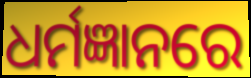
ଧର୍ମଜ୍ଞାନରେ